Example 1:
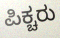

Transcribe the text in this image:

ಪಿಕ್ಚರು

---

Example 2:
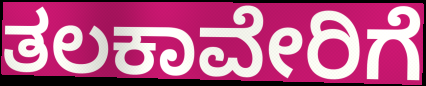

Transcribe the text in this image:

ತಲಕಾವೇರಿಗೆ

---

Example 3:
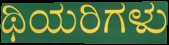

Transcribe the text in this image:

ಥಿಯರಿಗಳು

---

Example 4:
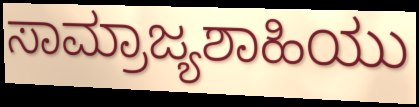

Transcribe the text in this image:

ಸಾಮ್ರಾಜ್ಯಶಾಹಿಯು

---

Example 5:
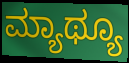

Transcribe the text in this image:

ಮ್ಯಾಥ್ಯೂ